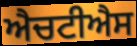
ਐਚਟੀਐਸ